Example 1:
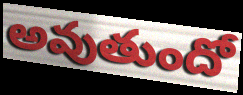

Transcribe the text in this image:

అవుతుందో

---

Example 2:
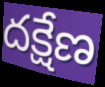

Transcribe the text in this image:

దక్షేణ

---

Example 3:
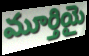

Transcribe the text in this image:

మూర్తియై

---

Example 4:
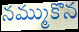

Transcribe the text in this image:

నమ్ముకొన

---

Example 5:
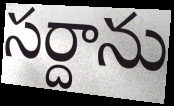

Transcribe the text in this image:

సర్దాను